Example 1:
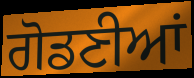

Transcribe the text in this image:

ਗੋਡਣੀਆਂ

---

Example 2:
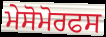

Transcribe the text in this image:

ਮੇਸੋਮੋਰਫਸ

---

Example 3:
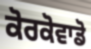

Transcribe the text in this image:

ਕੋਰਕੋਵਾਡੋ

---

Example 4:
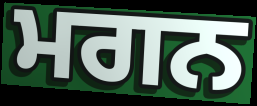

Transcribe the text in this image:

ਮਗਨ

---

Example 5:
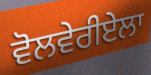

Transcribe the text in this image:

ਵੋਲਵੇਰੀਏਲਾ